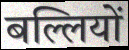
बल्लियों